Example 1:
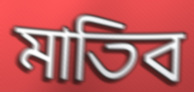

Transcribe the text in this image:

মাতিব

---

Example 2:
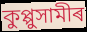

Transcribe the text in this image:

কুপ্পুসামীৰ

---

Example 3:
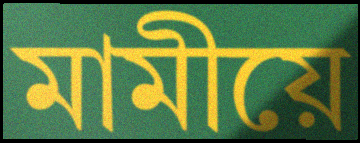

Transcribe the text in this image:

মামীয়ে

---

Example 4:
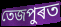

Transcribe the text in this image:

তেজপুৰত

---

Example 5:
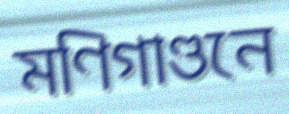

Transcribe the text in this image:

মণিগাণ্ডনে